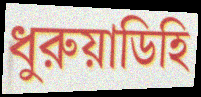
ধুরুয়াডিহি